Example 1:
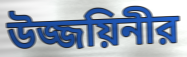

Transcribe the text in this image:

উজ্জয়িনীর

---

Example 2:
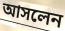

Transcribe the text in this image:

আসলেন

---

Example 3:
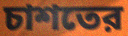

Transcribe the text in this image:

চাশতের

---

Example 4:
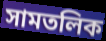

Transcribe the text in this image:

সামতলিক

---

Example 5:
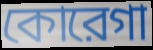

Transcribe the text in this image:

কোরেগা